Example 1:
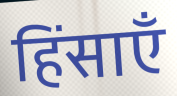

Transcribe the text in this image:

हिंसाएँ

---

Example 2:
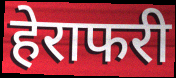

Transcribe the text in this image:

हेराफरी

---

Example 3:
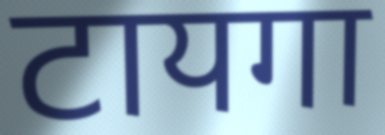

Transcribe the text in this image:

टायगा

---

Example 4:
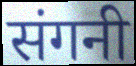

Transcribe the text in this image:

संगनी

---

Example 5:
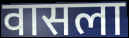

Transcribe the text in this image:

वासला